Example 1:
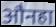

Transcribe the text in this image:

औनहा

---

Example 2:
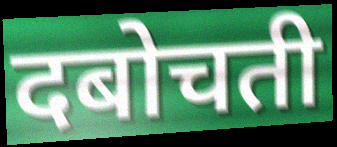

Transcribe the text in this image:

दबोचती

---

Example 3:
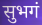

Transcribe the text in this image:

सुभगं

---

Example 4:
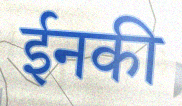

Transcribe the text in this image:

ईनकी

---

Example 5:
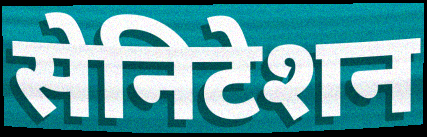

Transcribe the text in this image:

सेनिटेशन